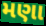
મણા